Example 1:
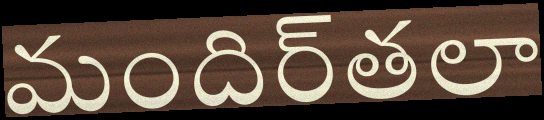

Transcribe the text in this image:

మందిర్‌తలా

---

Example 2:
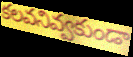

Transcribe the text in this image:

కలవనివ్వకుండా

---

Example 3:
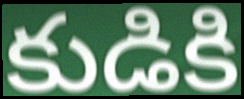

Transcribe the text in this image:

కుడికి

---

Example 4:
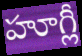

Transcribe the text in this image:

హూగ్లీ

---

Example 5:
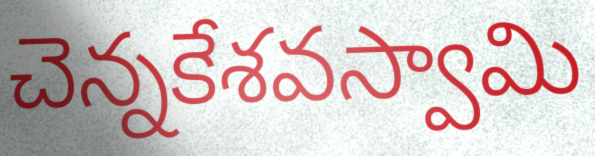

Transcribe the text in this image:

చెన్నకేశవస్వామి